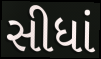
સીધાં